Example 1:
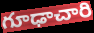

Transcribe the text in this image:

గూఢాచారి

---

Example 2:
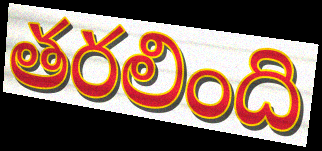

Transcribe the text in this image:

తరలింది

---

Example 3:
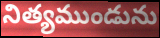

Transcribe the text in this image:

నిత్యముండును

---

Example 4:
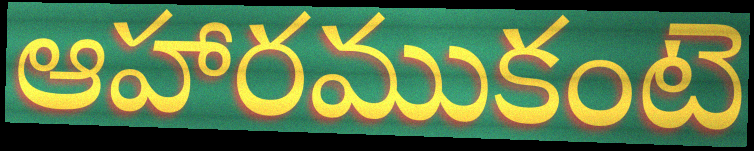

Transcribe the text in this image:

ఆహారముకంటె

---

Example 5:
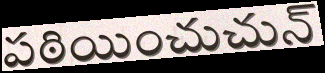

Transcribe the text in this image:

పఠియించుచున్